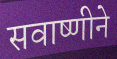
सवाष्णीने